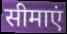
सीमाएं